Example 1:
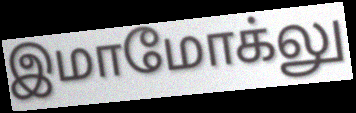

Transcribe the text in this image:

இமாமோக்லு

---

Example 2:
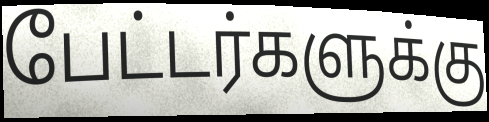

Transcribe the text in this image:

பேட்டர்களுக்கு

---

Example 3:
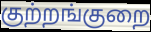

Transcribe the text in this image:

குற்றங்குறை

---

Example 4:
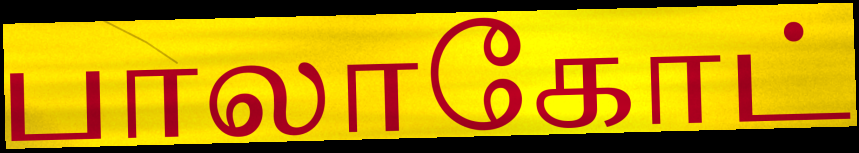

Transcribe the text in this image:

பாலாகோட்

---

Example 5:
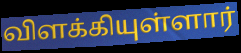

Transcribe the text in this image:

விளக்கியுள்ளார்